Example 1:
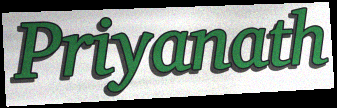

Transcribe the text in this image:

Priyanath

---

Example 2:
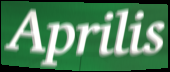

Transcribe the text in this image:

Aprilis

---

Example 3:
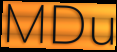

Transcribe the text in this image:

MDu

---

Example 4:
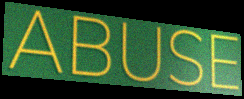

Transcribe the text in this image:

ABUSE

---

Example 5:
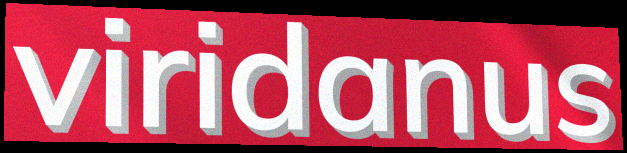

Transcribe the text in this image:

viridanus